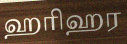
ஹரிஹர